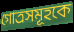
গোত্রসমূহকে